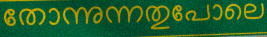
തോന്നുന്നതുപോലെ